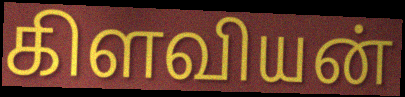
கிளவியன்